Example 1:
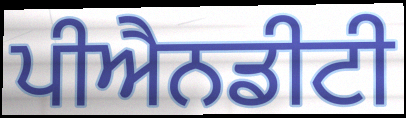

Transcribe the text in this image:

ਪੀਐਨਡੀਟੀ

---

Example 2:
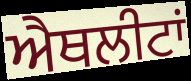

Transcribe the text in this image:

ਐਥਲੀਟਾਂ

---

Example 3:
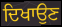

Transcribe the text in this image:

ਦਿਖਾਉਣ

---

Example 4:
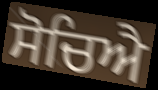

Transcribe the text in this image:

ਸੋਚਿਐ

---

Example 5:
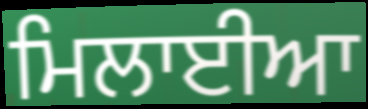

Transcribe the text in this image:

ਮਿਲਾਈਆ